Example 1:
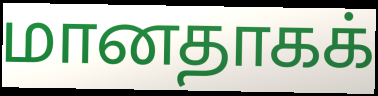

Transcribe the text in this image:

மானதாகக்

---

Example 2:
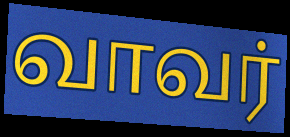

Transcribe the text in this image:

வாவர்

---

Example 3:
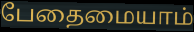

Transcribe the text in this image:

பேதைமையாம்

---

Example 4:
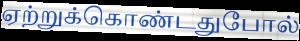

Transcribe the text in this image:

ஏற்றுக்கொண்டதுபோல்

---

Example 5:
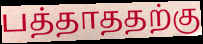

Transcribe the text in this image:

பத்தாததற்கு